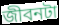
জীবনটা